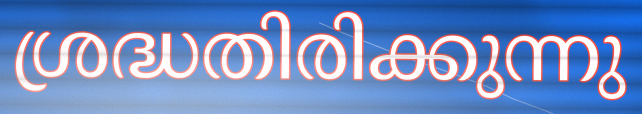
ശ്രദ്ധതിരിക്കുന്നു